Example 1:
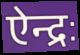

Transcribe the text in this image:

ऐन्द्रः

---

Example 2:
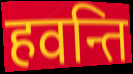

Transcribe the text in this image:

हवन्ति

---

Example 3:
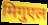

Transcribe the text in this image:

मिगुएल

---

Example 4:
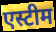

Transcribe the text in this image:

एस्टीम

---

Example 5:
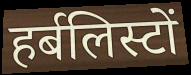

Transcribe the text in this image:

हर्बलिस्टों